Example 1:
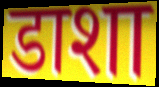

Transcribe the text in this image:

डाशा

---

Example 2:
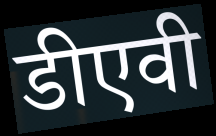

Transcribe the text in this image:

डीएवी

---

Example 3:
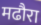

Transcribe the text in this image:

मढौरा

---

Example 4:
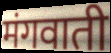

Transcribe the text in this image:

मंगवाती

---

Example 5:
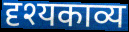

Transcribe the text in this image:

दृश्यकाव्य